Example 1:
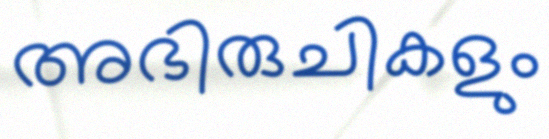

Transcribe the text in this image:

അഭിരുചികളും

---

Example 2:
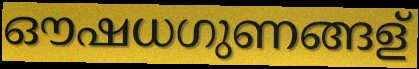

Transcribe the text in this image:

ഔഷധഗുണങ്ങള്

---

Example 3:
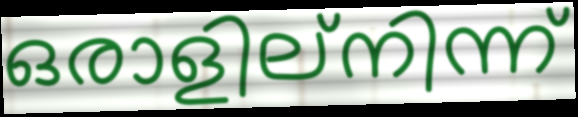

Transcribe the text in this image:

ഒരാളില്നിന്ന്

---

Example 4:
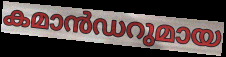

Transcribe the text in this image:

കമാൻഡറുമായ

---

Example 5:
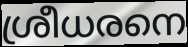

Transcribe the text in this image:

ശ്രീധരനെ